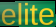
elite